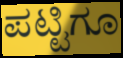
ಪಟ್ಟಿಗೂ